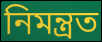
নিমন্ত্রত